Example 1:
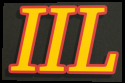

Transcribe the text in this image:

IIL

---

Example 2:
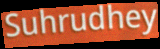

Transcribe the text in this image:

Suhrudhey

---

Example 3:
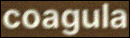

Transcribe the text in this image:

coagula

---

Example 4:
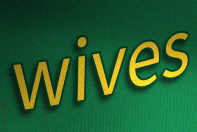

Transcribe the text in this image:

wives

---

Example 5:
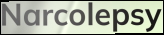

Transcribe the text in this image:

Narcolepsy